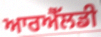
ਆਰਐੱਲਡੀ